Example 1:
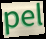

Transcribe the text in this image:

pel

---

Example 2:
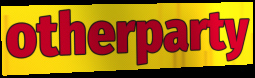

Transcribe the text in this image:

otherparty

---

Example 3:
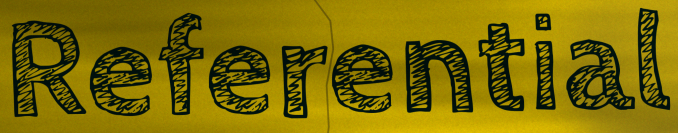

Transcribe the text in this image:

Referential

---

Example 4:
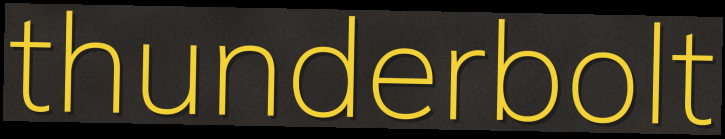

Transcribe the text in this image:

thunderbolt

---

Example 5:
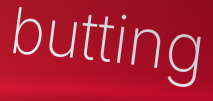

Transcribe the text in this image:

butting